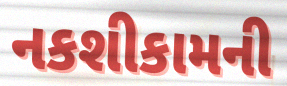
નકશીકામની